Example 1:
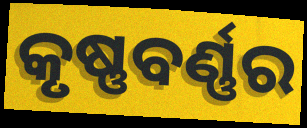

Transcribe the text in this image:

କୃଷ୍ଣବର୍ଣ୍ଣର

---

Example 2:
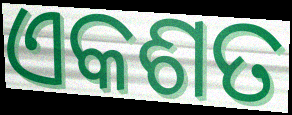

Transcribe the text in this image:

ଏକଶତ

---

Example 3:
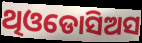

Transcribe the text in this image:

ଥିଓଡୋସିଅସ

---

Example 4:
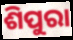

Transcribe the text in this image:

ଶିପୁରା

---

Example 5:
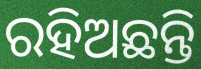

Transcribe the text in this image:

ରହିଅଛନ୍ତି